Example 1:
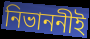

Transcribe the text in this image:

নিভাননীই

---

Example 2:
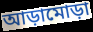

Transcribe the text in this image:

আড়ামোড়া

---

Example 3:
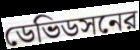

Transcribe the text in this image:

ডেভিডসনের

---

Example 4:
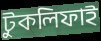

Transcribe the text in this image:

টুকলিফাই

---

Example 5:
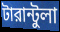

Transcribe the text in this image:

টারান্টুলা